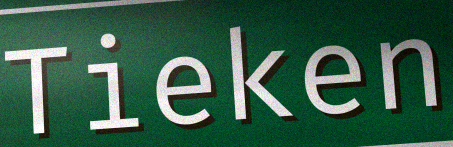
Tieken